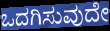
ಒದಗಿಸುವುದೇ